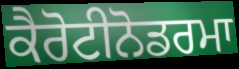
ਕੈਰੋਟੀਨੋਡਰਮਾ